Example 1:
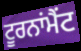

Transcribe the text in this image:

ਟੂਰਨਾਂਮੈਂਟ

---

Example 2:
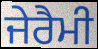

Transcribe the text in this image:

ਜੇਰੈਮੀ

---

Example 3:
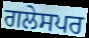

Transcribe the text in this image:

ਗਲੇਸਪਰ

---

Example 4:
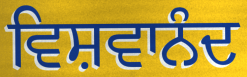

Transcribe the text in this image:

ਵਿਸ਼ਵਾਨੰਦ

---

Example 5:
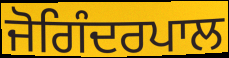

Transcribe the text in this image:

ਜੋਗਿੰਦਰਪਾਲ